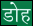
डोह